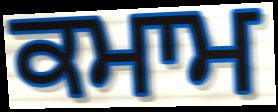
ਕਮਾਮ